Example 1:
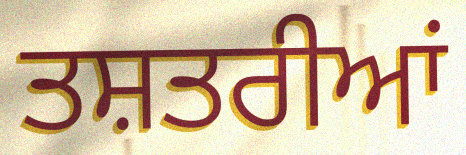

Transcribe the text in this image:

ਤਸ਼ਤਰੀਆਂ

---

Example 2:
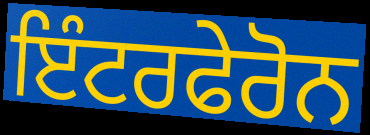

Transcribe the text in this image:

ਇੰਟਰਫੇਰੋਨ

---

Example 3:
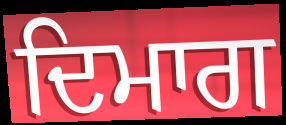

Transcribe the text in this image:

ਦਿਮਾਗ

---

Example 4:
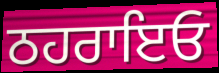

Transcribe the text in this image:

ਠਹਰਾਇਓ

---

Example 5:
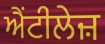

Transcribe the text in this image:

ਐਂਟੀਲੇਜ਼